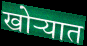
खोऱ्यात